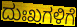
ದುಃಖಗಳಿಗೆ